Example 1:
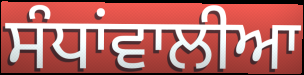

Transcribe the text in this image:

ਸੰਧਾਂਵਾਲੀਆ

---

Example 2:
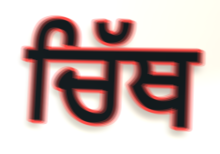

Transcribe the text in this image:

ਚਿੱਥ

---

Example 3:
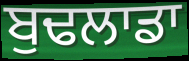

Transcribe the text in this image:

ਬੁਢਲਾਡਾ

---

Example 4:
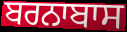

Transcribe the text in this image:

ਬਰਨਾਬਾਸ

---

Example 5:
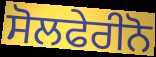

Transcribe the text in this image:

ਸੋਲਫੇਰੀਨੋ